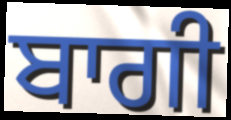
ਬਾਗੀ